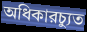
অধিকারচ্যুত